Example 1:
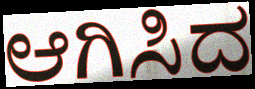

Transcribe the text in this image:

ಆಗಿಸಿದ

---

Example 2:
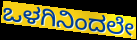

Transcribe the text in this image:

ಒಳಗಿನಿಂದಲೇ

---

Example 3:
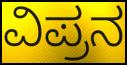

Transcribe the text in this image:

ವಿಪ್ರನ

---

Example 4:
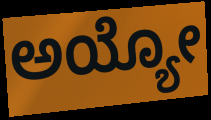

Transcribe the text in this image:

ಅಯ್ಯೋ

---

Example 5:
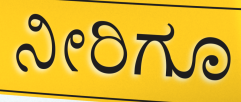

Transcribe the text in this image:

ನೀರಿಗೂ